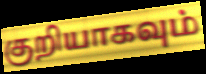
குறியாகவும்